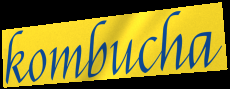
kombucha